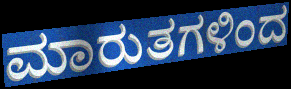
ಮಾರುತಗಳಿಂದ